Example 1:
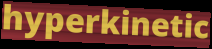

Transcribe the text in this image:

hyperkinetic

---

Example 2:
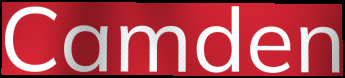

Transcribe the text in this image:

Camden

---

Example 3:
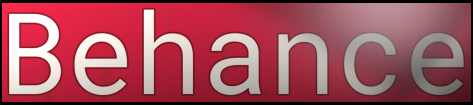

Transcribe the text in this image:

Behance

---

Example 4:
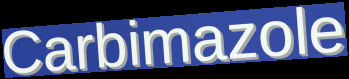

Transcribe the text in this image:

Carbimazole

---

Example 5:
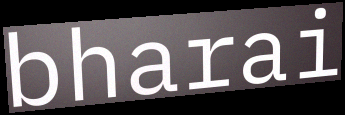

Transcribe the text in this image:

bharai